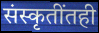
संस्कृतींतही